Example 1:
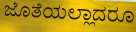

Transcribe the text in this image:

ಜೊತೆಯಲ್ಲಾದರೂ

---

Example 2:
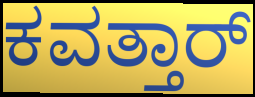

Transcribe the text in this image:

ಕವತ್ತಾರ್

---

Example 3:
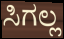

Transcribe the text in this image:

ಸಿಗಲ್ಲ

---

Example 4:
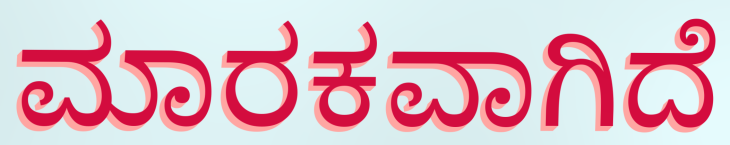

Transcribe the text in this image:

ಮಾರಕವಾಗಿದೆ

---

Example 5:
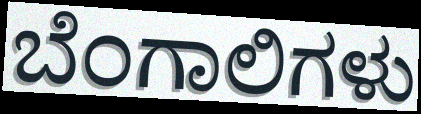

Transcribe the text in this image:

ಬೆಂಗಾಲಿಗಳು